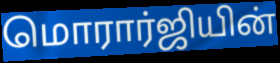
மொரார்ஜியின்